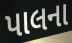
પાલના